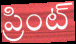
ప్రింట్